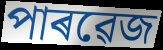
পাৰৱেজ